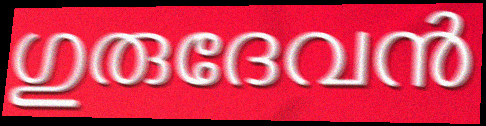
ഗുരുദേവൻ